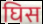
घिस